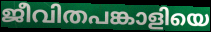
ജീവിതപങ്കാളിയെ